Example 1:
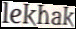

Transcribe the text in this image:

lekhak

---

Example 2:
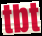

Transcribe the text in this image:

tbt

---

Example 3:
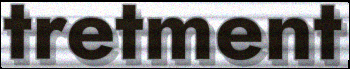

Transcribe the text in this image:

tretment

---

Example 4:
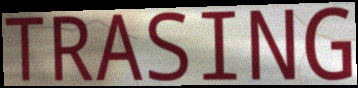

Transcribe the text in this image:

TRASING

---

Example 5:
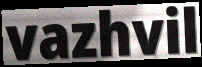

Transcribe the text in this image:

vazhvil